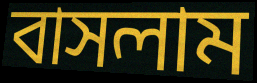
বাসলাম